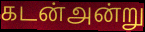
கடன்அன்று